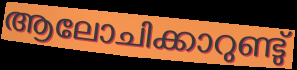
ആലോചിക്കാറുണ്ടു്